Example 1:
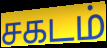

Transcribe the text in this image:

சகடம்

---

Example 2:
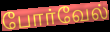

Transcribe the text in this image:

போர்வேல்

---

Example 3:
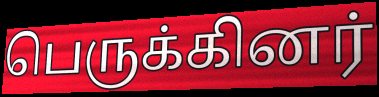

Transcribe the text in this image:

பெருக்கினர்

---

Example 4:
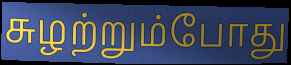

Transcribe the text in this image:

சுழற்றும்போது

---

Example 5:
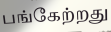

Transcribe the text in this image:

பங்கேற்றது